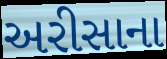
અરીસાના